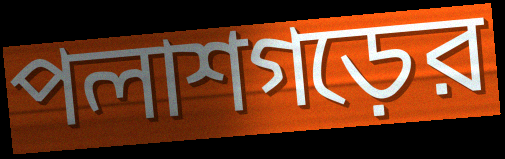
পলাশগড়ের